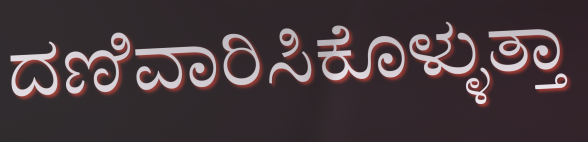
ದಣಿವಾರಿಸಿಕೊಳ್ಳುತ್ತಾ